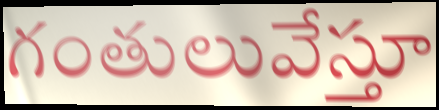
గంతులువేస్తూ